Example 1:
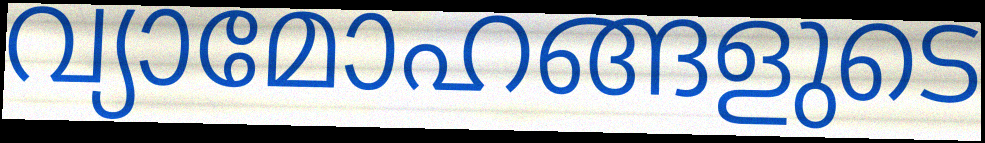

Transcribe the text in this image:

വ്യാമോഹങ്ങളുടെ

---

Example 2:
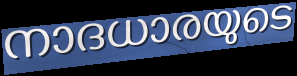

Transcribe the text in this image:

നാദധാരയുടെ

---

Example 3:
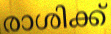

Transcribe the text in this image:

രാശിക്ക്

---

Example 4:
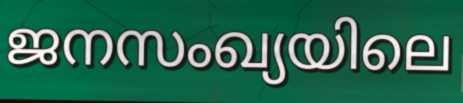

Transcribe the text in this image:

ജനസംഖ്യയിലെ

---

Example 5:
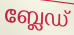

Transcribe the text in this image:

ബ്ലേഡ്